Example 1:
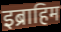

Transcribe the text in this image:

इब्राहिम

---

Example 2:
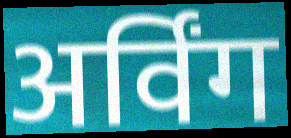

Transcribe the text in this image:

अर्विंग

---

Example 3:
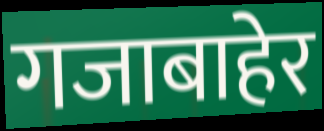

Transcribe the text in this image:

गजाबाहेर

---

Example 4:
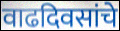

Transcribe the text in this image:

वाढदिवसांचे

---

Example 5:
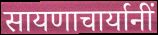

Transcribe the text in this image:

सायणाचार्यानीं